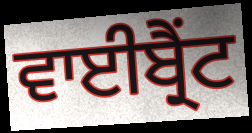
ਵਾਈਬ੍ਰੈਂਟ